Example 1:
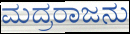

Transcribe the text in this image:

ಮದ್ರರಾಜನು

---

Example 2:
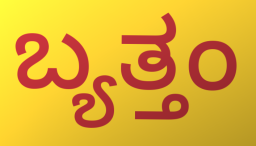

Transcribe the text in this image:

ಬ್ಯತ್ತಂ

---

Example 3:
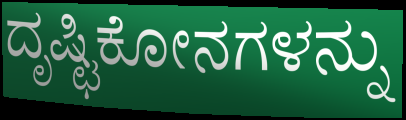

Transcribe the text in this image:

ದೃಷ್ಟಿಕೋನಗಳನ್ನು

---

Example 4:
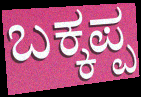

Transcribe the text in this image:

ಬಕ್ಕಪ್ಪ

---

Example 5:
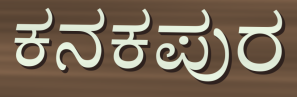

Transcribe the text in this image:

ಕನಕಪುರ